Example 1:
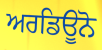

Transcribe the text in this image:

ਅਰਡਿਊਨੋ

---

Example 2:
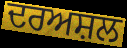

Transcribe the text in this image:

ਦਰਅਸ਼ਲ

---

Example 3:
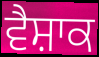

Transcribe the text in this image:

ਵੈਸ਼ਾਕ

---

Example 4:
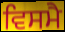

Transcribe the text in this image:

ਵਿਸਮੈ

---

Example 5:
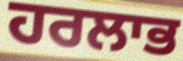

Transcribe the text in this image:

ਹਰਲਾਭ